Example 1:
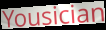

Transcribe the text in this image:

Yousician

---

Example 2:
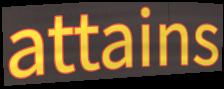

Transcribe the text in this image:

attains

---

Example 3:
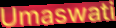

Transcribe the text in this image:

Umaswati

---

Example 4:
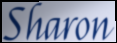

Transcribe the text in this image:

Sharon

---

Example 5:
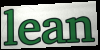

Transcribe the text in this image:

lean